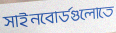
সাইনবোর্ডগুলোতে